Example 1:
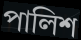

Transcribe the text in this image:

পালিশ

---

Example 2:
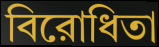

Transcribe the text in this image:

বিরোধিতা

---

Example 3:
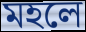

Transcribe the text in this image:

মহলে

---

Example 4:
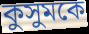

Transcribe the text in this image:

কুসুমকে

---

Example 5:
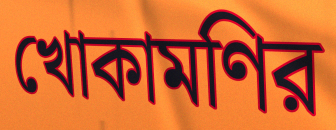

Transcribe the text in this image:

খোকামণির